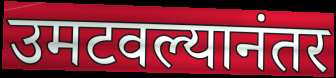
उमटवल्यानंतर